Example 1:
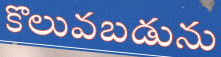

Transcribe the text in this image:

కొలువబడును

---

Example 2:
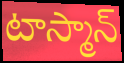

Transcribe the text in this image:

టాస్మాన్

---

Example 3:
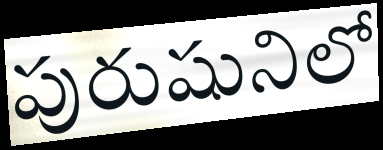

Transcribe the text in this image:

పురుషునిలో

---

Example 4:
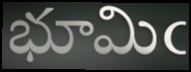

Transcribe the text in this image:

భూమిఁ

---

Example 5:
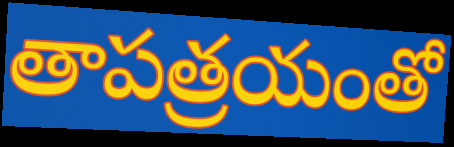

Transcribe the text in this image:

తాపత్రయంతో